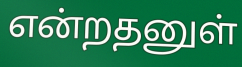
என்றதனுள்